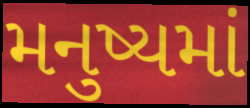
મનુષ્યમાં